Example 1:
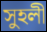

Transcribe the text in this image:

সুহলী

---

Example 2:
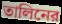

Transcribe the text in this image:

তালিনের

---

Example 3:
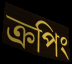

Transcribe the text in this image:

ক্রপিং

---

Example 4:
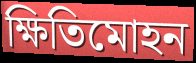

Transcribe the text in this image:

ক্ষিতিমোহন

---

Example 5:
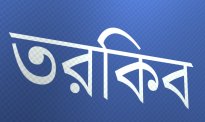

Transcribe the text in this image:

তরকিব